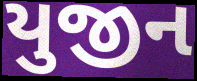
યુજીન